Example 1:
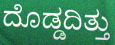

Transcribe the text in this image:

ದೊಡ್ಡದಿತ್ತು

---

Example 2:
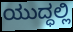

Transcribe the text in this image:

ಯುದ್ಧಲ್ಲಿ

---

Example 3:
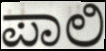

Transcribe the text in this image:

ಪಾಲಿ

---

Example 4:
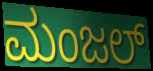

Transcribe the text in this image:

ಮಂಜಲ್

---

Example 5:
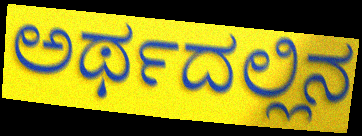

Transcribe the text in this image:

ಅರ್ಥದಲ್ಲಿನ